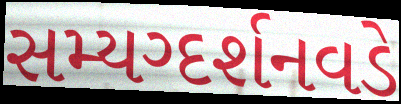
સમ્યગ્દર્શનવડે